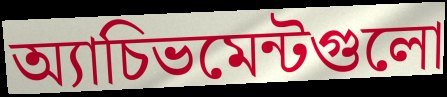
অ্যাচিভমেন্টগুলো